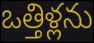
ఒత్తిళ్లను